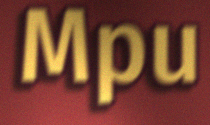
Mpu